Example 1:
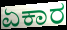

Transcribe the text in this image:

ಏಕಾರ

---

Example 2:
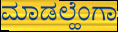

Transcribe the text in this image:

ಮಾಡಲ್ಹೆಂಗಾ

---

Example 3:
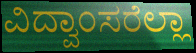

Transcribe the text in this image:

ವಿದ್ವಾಂಸರೆಲ್ಲಾ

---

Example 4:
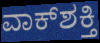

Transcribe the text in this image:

ವಾಕ್‌ಶಕ್ತಿ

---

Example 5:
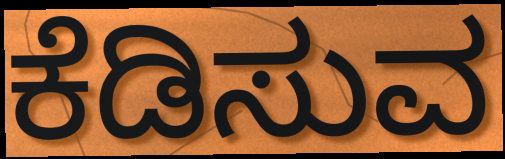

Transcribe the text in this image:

ಕೆಡಿಸುವ